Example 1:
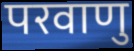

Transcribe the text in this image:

परवाणु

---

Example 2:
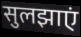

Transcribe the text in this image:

सुलझाएं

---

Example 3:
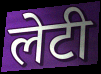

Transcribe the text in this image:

लेटी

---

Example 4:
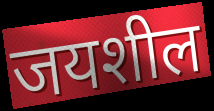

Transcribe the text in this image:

जयशील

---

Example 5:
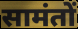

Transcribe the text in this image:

सामंतों